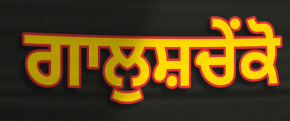
ਗਾਲੁਸ਼ਚੇਂਕੋ